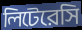
লিটেরেসি